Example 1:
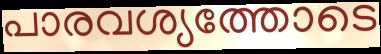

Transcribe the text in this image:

പാരവശ്യത്തോടെ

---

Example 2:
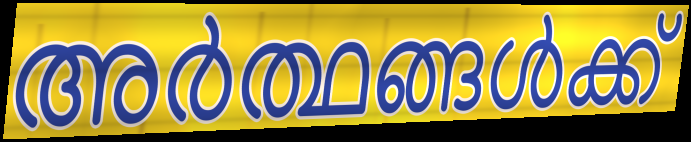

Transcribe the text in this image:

അർത്ഥങ്ങൾക്ക്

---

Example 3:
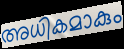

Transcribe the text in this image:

അധികമാകും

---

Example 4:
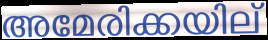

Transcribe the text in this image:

അമേരിക്കയില്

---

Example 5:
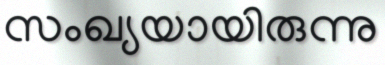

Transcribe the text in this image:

സംഖ്യയായിരുന്നു